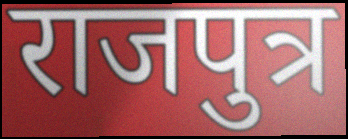
राजपुत्र